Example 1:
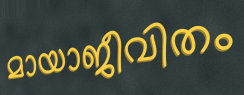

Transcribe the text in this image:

മായാജീവിതം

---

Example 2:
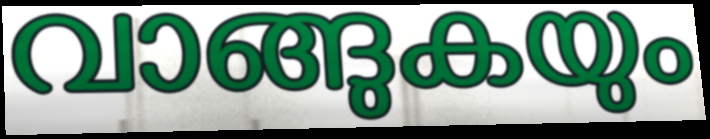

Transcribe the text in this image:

വാങ്ങുകയും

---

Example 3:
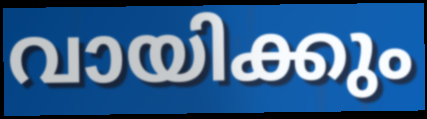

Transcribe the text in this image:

വായിക്കും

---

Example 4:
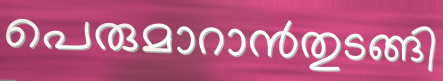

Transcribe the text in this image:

പെരുമാറാൻതുടങ്ങി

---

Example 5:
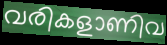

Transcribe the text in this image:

വരികളാണിവ